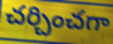
చర్చించగా